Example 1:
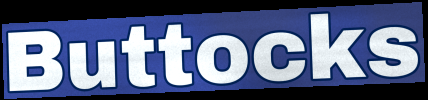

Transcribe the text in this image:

Buttocks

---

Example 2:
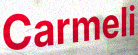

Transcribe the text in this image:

Carmeli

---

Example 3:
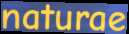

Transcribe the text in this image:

naturae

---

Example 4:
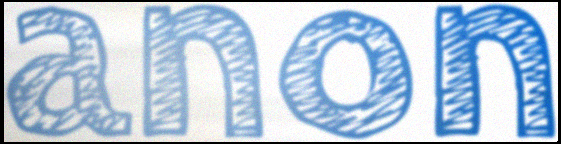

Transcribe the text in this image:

anon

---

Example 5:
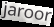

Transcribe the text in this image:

jaroor